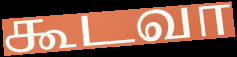
கூடவா